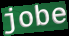
jobe